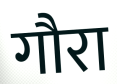
गौरा